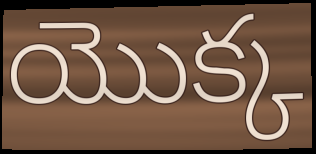
యొక్క